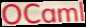
OCaml